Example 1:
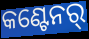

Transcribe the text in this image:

କଣ୍ଟେନର୍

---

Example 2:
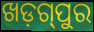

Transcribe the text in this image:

ଖଡ଼ଗ୍‌ପୁର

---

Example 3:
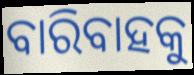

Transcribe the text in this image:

ବାରିବାହକୁ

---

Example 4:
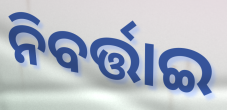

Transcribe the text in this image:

ନିବର୍ତ୍ତାଇ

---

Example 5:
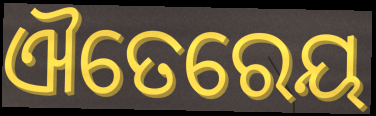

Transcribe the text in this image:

ଐତେରେୟ